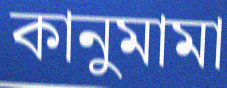
কানুমামা